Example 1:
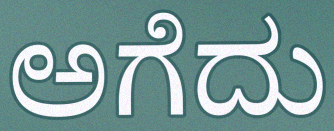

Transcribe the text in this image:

ಅಗೆದು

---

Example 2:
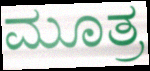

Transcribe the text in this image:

ಮೂತ್ರ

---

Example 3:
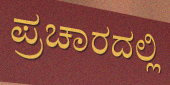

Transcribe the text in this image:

ಪ್ರಚಾರದಲ್ಲಿ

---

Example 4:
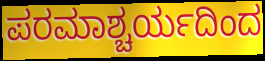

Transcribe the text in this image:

ಪರಮಾಶ್ಚರ್ಯದಿಂದ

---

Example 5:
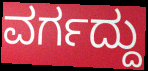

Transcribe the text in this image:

ವರ್ಗದ್ದು